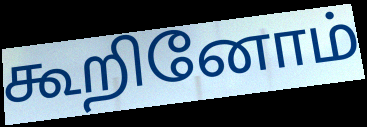
கூறினோம்